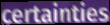
certainties